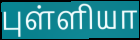
புள்ளியா